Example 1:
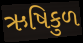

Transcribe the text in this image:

ઋષિકુળ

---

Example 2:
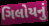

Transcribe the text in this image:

ગિલોયનું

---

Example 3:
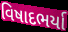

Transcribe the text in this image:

વિષાદભર્યા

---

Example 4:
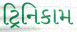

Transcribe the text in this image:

ટ્રિનિકામ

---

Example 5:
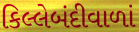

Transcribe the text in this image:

કિલ્લેબંદીવાળાં